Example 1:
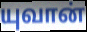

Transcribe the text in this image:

யுவான்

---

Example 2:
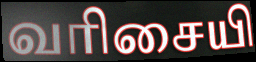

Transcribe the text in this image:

வரிசையி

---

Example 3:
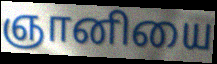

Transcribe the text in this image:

ஞானியை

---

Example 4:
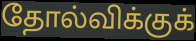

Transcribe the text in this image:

தோல்விக்குக்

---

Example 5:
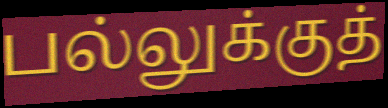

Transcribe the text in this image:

பல்லுக்குத்